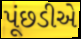
પૂંછડીએ